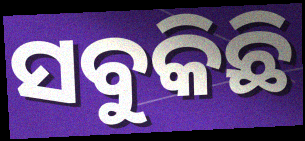
ସବୁକିଛି